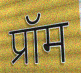
प्रॉम